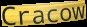
Cracow